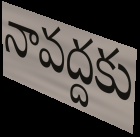
నావద్దకు